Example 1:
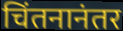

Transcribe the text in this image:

चिंतनानंतर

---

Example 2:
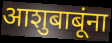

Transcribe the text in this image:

आशुबाबूंना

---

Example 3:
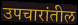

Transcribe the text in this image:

उपचारांतील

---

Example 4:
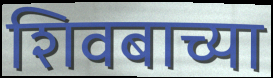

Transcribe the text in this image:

शिवबाच्या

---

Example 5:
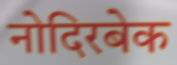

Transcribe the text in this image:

नोदिरबेक